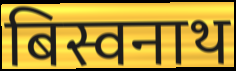
बिस्वनाथ